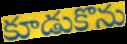
కూడుకొను